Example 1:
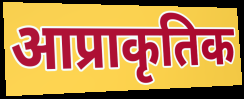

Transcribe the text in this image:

आप्राकृतिक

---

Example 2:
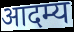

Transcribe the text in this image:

आदम्य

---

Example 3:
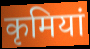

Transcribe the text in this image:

कृमियां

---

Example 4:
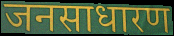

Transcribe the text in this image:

जनसाधारण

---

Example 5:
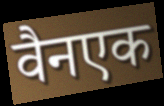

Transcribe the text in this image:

वैनएक